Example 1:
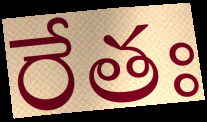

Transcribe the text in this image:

రేతః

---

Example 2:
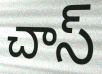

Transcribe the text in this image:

చాస్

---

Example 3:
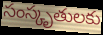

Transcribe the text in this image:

సంస్కృతులకు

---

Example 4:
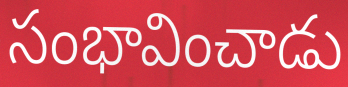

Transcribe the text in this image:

సంభావించాడు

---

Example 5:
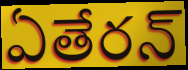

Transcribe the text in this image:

ఏతేరన్